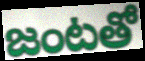
జంటతో